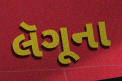
લૅગૂના